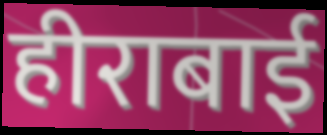
हीराबाई